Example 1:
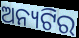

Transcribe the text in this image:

ଅନ୍ୟଟିର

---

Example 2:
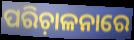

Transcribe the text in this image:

ପରିଚ଼ାଳନାରେ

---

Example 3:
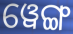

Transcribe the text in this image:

ୱେଙ୍ଗ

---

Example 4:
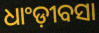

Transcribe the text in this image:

ଧାଂଡ଼ୀବସା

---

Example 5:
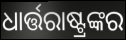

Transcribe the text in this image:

ଧାର୍ତ୍ତରାଷ୍ଟ୍ରଙ୍କର